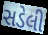
સડેલી